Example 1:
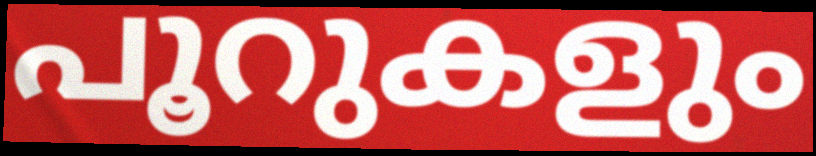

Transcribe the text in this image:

പൂറുകളും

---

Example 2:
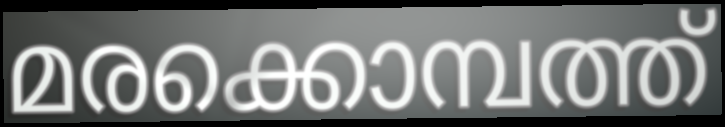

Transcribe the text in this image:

മരക്കൊമ്പത്ത്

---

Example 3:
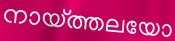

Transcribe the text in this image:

നായ്ത്തലയോ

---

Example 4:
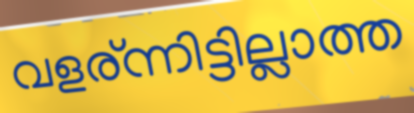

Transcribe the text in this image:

വളര്ന്നിട്ടില്ലാത്ത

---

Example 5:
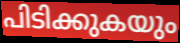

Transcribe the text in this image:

പിടിക്കുകയും